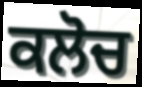
ਕਲੋਚ